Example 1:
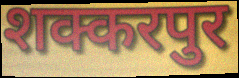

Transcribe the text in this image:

शक्करपुर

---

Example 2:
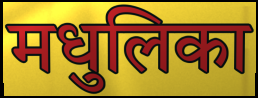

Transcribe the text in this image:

मधुलिका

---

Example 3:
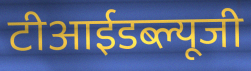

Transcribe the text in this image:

टीआईडब्ल्यूजी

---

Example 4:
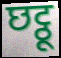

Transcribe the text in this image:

छट्ठू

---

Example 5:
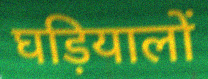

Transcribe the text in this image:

घड़ियालों